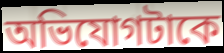
অভিযোগটাকে